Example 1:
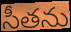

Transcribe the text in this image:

సీతను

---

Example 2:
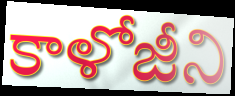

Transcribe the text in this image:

కాళోజీని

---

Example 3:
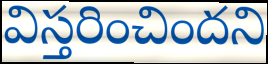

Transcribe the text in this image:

విస్తరించిందని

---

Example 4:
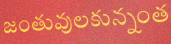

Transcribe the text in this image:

జంతువులకున్నంత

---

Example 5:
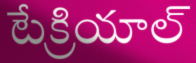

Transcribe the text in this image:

టేక్రియాల్